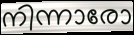
നിന്നാരോ